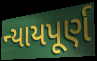
ન્યાયપૂર્ણ